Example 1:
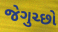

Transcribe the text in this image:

જેગુચ્છો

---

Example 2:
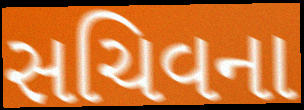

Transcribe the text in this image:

સચિવના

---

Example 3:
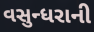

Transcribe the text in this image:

વસુન્ધરાની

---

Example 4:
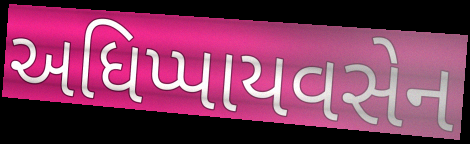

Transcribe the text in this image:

અધિપ્પાયવસેન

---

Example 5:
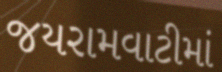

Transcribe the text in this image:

જયરામવાટીમાં